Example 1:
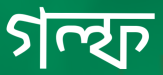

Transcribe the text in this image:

গল্ফ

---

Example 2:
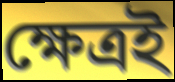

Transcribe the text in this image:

ক্ষেত্রই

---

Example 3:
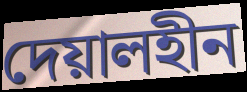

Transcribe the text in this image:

দেয়ালহীন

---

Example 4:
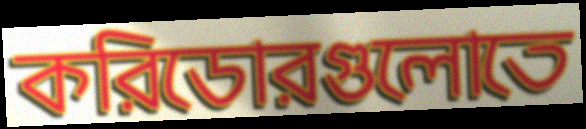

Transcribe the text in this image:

করিডোরগুলোতে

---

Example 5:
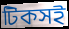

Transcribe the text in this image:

টিকসই